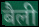
बैली